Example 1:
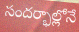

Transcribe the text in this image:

సందర్భాల్లోనే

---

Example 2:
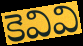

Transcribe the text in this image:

కెవివి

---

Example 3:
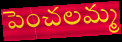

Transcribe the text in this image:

పెంచలమ్మ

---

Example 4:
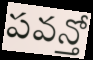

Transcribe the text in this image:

పవన్తో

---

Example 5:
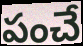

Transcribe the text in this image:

పంచే